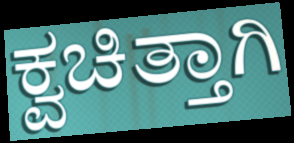
ಕ್ವಚಿತ್ತಾಗಿ